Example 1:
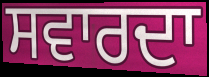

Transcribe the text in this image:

ਸਵਾਰਦਾ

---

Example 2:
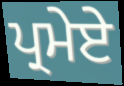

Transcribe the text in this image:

ਪ੍ਰਮੇਏ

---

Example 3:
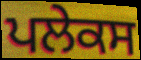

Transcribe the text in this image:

ਪਲੇਕਸ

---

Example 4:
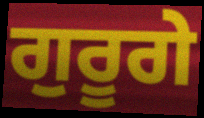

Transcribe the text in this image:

ਗੁਰੂਗੇ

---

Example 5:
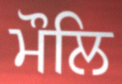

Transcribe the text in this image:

ਮੌਲਿ